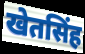
खेतसिंह